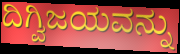
ದಿಗ್ವಿಜಯವನ್ನು